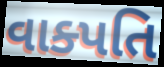
વાક્પતિ